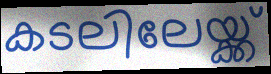
കടലിലേയ്ക്ക്